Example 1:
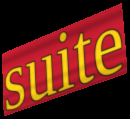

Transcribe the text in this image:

suite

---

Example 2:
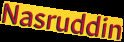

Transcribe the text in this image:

Nasruddin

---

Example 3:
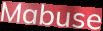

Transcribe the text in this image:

Mabuse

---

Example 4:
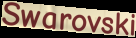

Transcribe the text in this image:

Swarovski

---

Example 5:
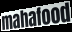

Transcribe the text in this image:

mahafood